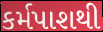
કર્મપાશથી